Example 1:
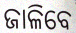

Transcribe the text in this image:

ଜାଳିବେ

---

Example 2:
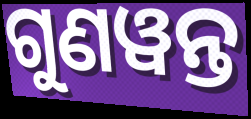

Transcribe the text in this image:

ଗୁଣୱନ୍ତ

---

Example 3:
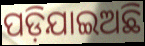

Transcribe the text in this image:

ପଡ଼ିଯାଇଅଛି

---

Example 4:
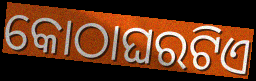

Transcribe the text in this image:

କୋଠାଘରଟିଏ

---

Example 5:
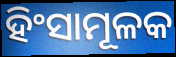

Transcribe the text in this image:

ହିଂସାମୂଳକ